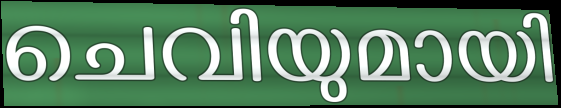
ചെവിയുമായി